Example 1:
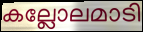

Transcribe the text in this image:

കല്ലോലമാടി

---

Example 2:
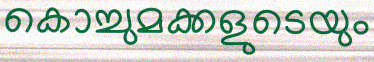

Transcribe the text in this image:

കൊച്ചുമക്കളുടെയും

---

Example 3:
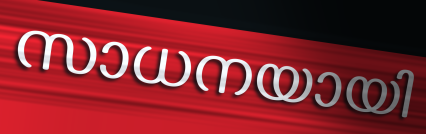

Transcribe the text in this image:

സാധനയായി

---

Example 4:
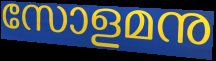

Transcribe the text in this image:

സോളമനു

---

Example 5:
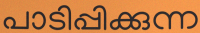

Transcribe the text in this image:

പാടിപ്പിക്കുന്ന